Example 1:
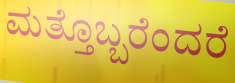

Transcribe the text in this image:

ಮತ್ತೊಬ್ಬರೆಂದರೆ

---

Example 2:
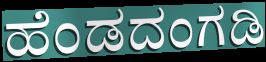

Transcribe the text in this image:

ಹೆಂಡದಂಗಡಿ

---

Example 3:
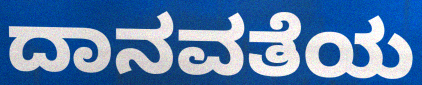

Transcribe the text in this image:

ದಾನವತೆಯ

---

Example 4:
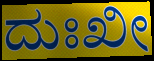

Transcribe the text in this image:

ದುಃಖೀ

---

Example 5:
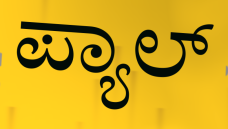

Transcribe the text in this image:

ಪ್ಯಾಲ್